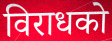
विराधको